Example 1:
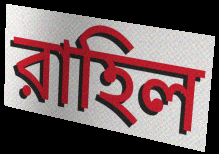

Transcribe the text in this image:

রাহিল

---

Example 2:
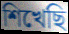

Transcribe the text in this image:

শিখেছি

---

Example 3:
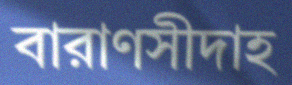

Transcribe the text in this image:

বারাণসীদাহ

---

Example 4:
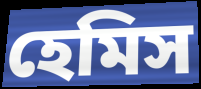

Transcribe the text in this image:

হেমিস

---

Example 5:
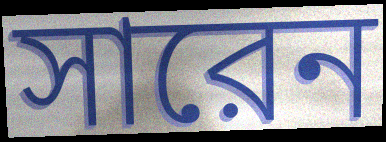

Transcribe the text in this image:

সারেন